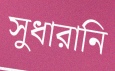
সুধারানি